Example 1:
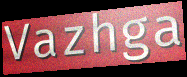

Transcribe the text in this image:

Vazhga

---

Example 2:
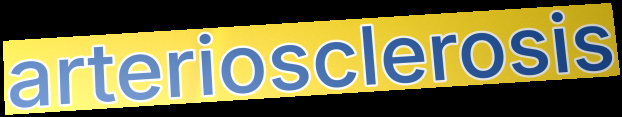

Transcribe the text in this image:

arteriosclerosis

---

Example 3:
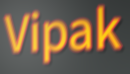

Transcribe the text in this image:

Vipak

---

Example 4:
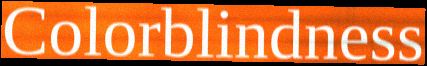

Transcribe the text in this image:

Colorblindness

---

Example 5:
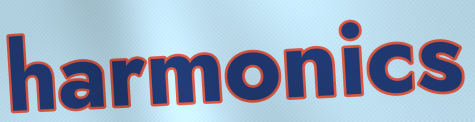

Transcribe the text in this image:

harmonics